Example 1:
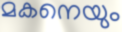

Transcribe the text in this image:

മകനെയും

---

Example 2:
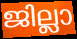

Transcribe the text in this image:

ജില്ലാ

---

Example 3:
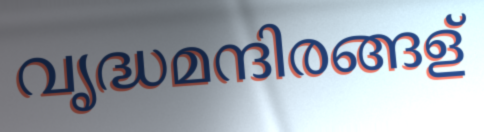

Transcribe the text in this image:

വൃദ്ധമന്ദിരങ്ങള്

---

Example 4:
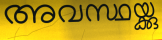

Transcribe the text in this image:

അവസ്ഥയ്ക്കു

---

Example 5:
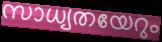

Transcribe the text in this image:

സാധ്യതയേറും